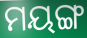
ମୟଙ୍ଗ